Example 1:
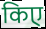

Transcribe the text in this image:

किए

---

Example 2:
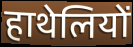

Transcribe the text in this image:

हाथेलियों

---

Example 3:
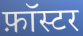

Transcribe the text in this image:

फ़ॉस्टर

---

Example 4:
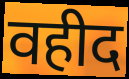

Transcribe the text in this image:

वहीद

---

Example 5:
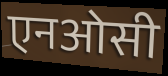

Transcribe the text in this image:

एनओसी